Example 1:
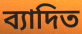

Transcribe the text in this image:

ব্যাদিত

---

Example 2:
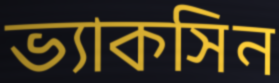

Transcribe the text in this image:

ভ্যাকসিন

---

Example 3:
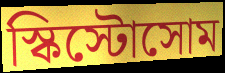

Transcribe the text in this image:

স্কিস্টোসোম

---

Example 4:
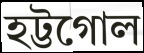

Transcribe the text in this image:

হট্টগোল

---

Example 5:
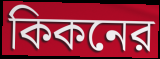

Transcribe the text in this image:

কিকনের